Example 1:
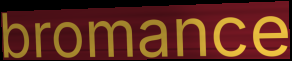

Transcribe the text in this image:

bromance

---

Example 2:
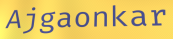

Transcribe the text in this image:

Ajgaonkar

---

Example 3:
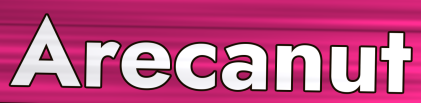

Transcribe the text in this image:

Arecanut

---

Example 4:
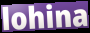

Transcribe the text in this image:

lohina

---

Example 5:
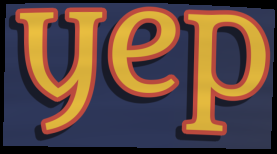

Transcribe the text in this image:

yep